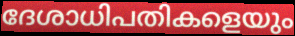
ദേശാധിപതികളെയും